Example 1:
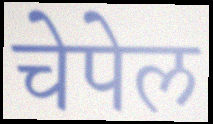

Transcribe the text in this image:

चेपेल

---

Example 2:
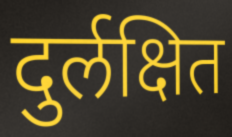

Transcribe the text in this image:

दुर्लक्षित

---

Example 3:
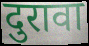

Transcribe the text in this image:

दुरावा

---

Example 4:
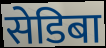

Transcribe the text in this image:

सेडिबा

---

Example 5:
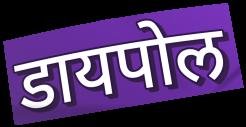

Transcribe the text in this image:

डायपोल